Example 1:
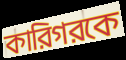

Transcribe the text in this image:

কারিগরকে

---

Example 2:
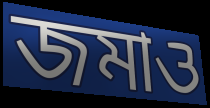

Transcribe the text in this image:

জমাও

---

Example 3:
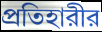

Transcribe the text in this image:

প্রতিহারীর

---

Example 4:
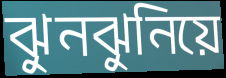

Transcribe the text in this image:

ঝুনঝুনিয়ে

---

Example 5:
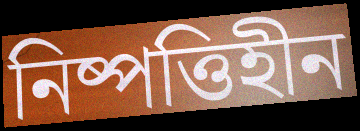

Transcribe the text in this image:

নিষ্পত্তিহীন